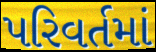
પરિવર્તમાં